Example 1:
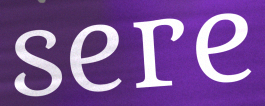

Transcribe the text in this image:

sere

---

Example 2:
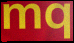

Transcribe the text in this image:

mq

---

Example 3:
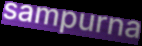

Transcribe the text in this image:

sampurna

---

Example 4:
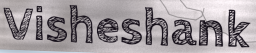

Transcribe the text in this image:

Visheshank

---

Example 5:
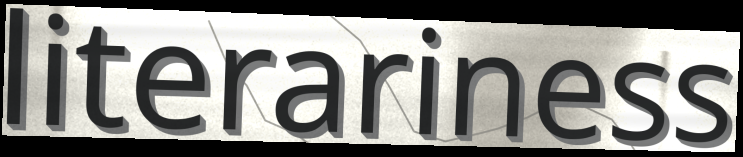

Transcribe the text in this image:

literariness